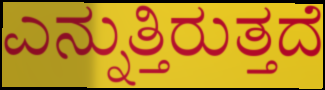
ಎನ್ನುತ್ತಿರುತ್ತದೆ